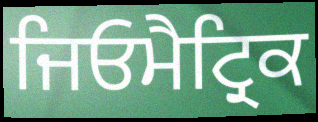
ਜਿਓਮੈਟ੍ਰਿਕ